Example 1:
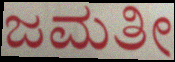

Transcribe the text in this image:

ಜಮತೀ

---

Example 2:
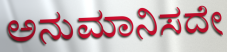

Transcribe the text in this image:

ಅನುಮಾನಿಸದೇ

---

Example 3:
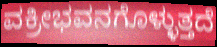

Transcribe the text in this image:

ವಕ್ರೀಭವನಗೊಳ್ಳುತ್ತದೆ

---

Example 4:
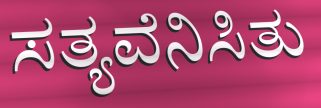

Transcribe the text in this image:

ಸತ್ಯವೆನಿಸಿತು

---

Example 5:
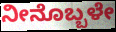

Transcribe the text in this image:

ನೀನೊಬ್ಬಳೇ